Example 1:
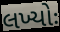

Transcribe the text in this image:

લખ્યોઃ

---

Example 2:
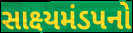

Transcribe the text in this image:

સાક્ષ્યમંડપનો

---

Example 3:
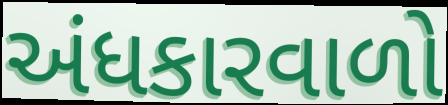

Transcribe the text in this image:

અંધકારવાળો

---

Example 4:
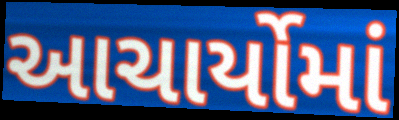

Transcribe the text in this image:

આચાર્યોમાં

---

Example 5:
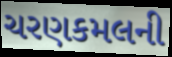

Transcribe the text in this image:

ચરણકમલની